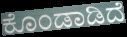
ಕೊಂಡಾಡಿದೆ